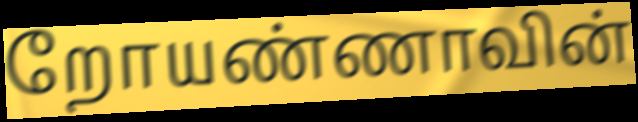
றோயண்ணாவின்